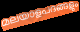
മലയാളപദങ്ങളും